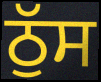
ਠੁੱਸ